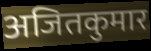
अजितकुमार